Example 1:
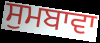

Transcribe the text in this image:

ਸੁਮਬਾਵਾ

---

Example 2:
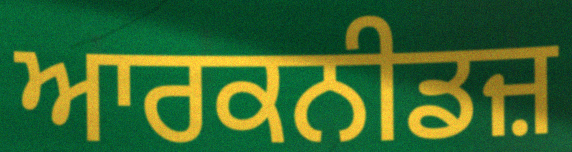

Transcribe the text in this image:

ਆਰਕਨੀਡਜ਼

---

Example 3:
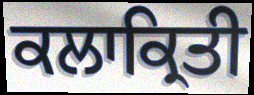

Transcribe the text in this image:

ਕਲਾਕ੍ਰਿਤੀ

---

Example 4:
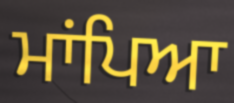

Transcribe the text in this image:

ਮਾਂਪਿਆ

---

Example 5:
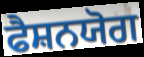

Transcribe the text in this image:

ਫੈਸ਼ਨਯੋਗ